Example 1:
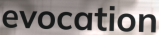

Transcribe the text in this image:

evocation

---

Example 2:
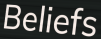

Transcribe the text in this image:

Beliefs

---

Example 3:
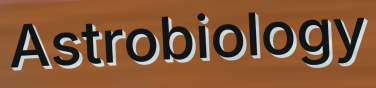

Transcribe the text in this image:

Astrobiology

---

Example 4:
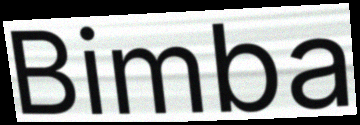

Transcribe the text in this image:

Bimba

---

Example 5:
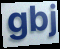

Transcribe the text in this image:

gbj